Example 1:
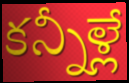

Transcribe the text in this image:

కన్నీళ్లే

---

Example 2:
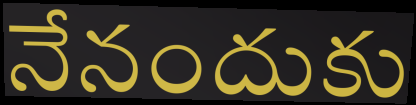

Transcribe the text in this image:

నేనందుకు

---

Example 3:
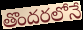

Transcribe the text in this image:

తొందరలోనే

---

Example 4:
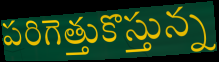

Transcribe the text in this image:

పరిగెత్తుకొస్తున్న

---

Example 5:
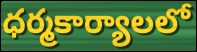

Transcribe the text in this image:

ధర్మకార్యాలలో